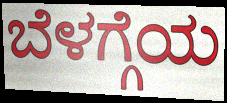
ಬೆಳಗ್ಗೆಯ